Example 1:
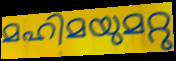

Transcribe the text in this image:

മഹിമയുമറ്റു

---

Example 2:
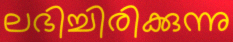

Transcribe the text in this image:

ലഭിച്ചിരിക്കുന്നു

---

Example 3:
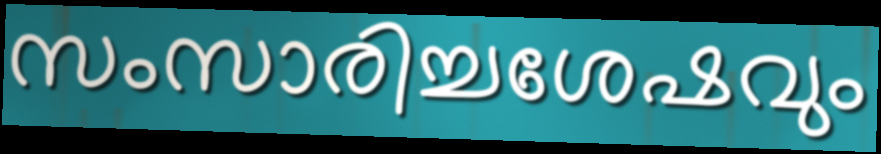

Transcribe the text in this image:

സംസാരിച്ചശേഷവും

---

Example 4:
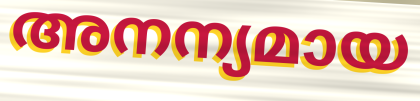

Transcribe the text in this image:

അനന്യമായ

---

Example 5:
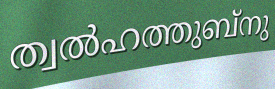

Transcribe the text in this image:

ത്വൽഹത്തുബ്നു